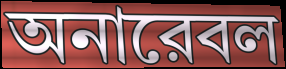
অনারেবল